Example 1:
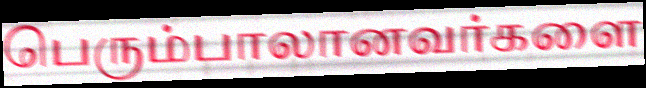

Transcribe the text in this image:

பெரும்பாலானவர்களை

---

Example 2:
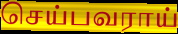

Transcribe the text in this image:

செய்பவராய்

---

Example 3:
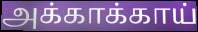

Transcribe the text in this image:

அக்காக்காய்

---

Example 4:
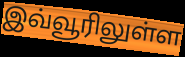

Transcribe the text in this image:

இவ்வூரிலுள்ள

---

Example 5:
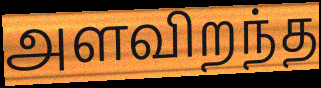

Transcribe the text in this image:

அளவிறந்த